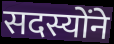
सदस्योंने